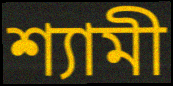
শ্যামী